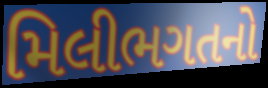
મિલીભગતનો